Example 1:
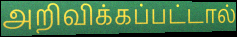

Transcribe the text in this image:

அறிவிக்கப்பட்டால்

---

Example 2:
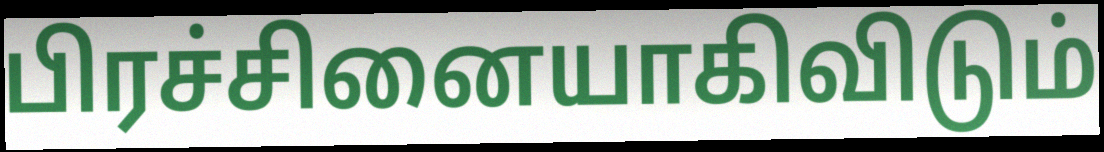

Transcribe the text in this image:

பிரச்சினையாகிவிடும்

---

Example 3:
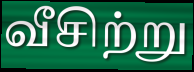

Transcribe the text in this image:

வீசிற்று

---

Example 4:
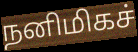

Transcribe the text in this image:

நனிமிகச்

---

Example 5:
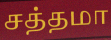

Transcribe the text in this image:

சத்தமா